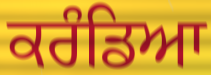
ਕਰੰਡਿਆ